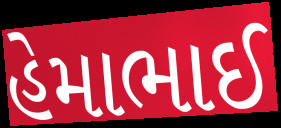
હેમાભાઈ